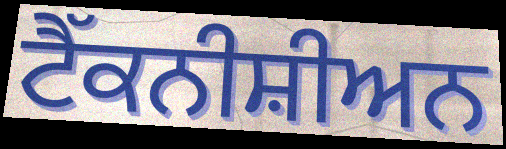
ਟੈੱਕਨੀਸ਼ੀਅਨ